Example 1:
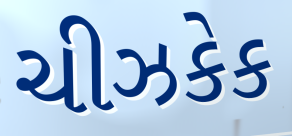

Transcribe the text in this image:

ચીઝકેક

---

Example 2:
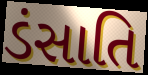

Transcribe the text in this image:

ડંસાતિ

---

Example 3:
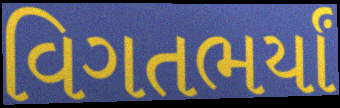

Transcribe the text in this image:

વિગતભર્યાં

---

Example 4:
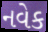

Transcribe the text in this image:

નવેક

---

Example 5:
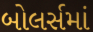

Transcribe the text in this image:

બોલર્સમાં